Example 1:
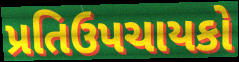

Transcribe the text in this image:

પ્રતિઉપચાયકો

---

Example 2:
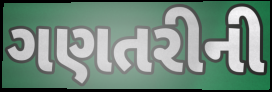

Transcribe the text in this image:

ગણતરીની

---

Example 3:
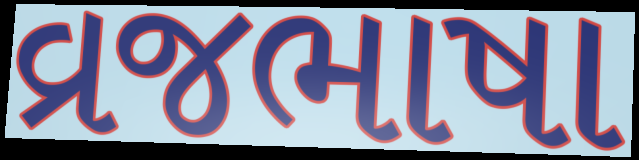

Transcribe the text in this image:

વ્રજભાષા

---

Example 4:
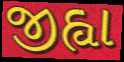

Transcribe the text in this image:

જીહ્વા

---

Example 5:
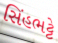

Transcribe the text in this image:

સિંહભટ્ટે